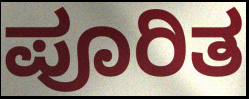
ಪೂರಿತ